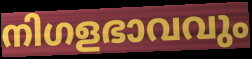
നിഗളഭാവവും